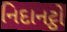
નિદાનટ્ઠો